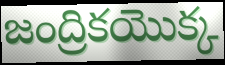
జంద్రికయొక్క